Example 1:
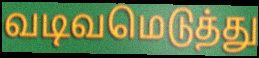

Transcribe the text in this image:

வடிவமெடுத்து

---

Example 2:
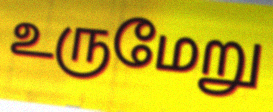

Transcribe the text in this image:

உருமேறு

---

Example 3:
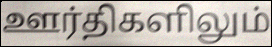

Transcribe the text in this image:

ஊர்திகளிலும்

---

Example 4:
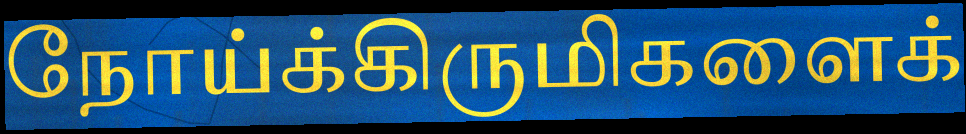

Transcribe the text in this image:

நோய்க்கிருமிகளைக்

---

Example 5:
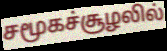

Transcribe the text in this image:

சமூகச்சூழலில்